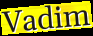
Vadim